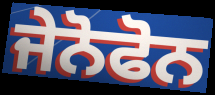
ਜੇਨੋਫੋਨ